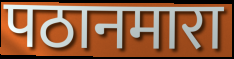
पठानमारा